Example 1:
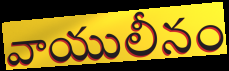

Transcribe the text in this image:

వాయులీనం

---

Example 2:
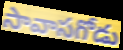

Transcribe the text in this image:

సావాసగోడు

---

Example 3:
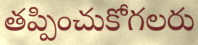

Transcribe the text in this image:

తప్పించుకోగలరు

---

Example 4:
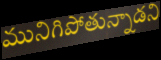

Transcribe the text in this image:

మునిగిపోతున్నాడని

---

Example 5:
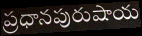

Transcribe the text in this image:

ప్రధానపురుషాయ